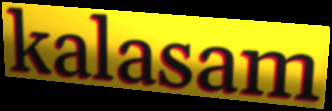
kalasam